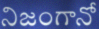
నిజంగానో